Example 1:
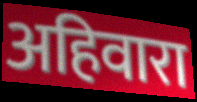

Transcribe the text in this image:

अहिवारा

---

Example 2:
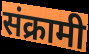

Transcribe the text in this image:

संक्रामी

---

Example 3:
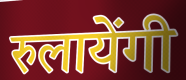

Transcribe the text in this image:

रुलायेंगी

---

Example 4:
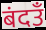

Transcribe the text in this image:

बंदउँ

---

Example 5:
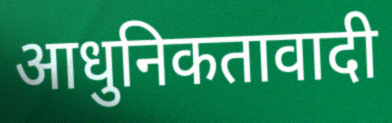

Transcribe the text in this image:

आधुनिकतावादी